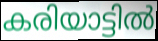
കരിയാട്ടിൽ